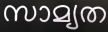
സാമ്യത